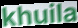
khuila